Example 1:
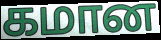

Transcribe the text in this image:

கமான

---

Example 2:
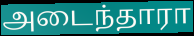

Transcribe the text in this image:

அடைந்தாரா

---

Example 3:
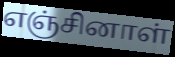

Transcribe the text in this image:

எஞ்சினாள்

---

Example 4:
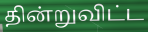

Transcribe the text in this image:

தின்றுவிட்ட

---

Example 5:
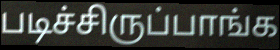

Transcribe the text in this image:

படிச்சிருப்பாங்க